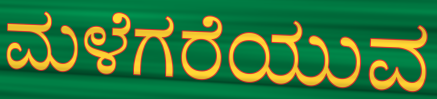
ಮಳೆಗರೆಯುವ